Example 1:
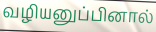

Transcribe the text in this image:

வழியனுப்பினால்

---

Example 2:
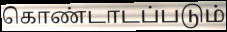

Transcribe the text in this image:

கொண்டாடப்படும்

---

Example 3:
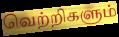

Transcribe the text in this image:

வெற்றிகளும்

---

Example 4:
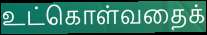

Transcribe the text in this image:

உட்கொள்வதைக்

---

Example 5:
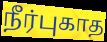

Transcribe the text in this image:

நீர்புகாத